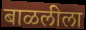
बाळलीला